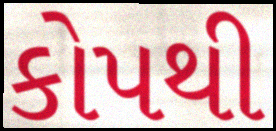
કોપથી